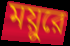
ময়ুরে